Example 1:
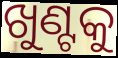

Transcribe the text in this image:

ଖୁଣ୍ଟକୁ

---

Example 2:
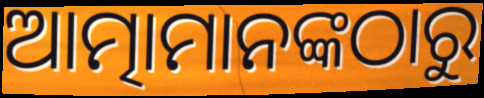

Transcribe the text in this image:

ଆତ୍ମାମାନଙ୍କଠାରୁ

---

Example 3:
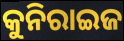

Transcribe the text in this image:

କୁନିରାଇଜ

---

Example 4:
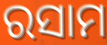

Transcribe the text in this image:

ରସାମ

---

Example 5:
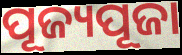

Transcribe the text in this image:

ପୂଜ୍ୟପୂଜା